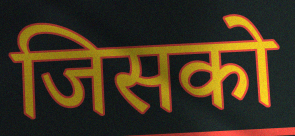
जिसको